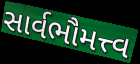
સાર્વભૌમત્ત્વ